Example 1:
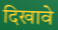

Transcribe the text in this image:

दिखावे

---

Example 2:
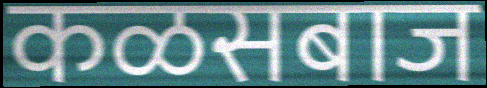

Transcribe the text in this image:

कळसबाज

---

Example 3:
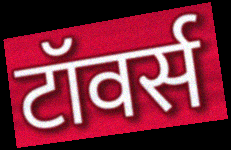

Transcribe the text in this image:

टॉवर्स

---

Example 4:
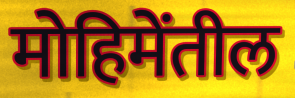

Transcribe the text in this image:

मोहिमेंतील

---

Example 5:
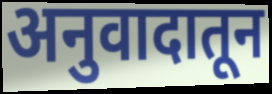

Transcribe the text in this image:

अनुवादातून